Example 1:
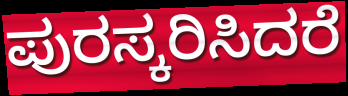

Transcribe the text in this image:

ಪುರಸ್ಕರಿಸಿದರೆ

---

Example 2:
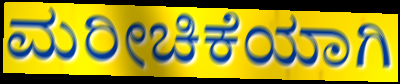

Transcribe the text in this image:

ಮರೀಚಿಕೆಯಾಗಿ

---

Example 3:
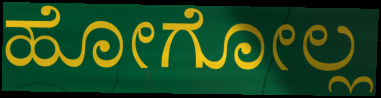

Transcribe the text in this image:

ಹೋಗೋಲ್ಲ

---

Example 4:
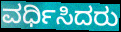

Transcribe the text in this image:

ವರ್ಧಿಸಿದರು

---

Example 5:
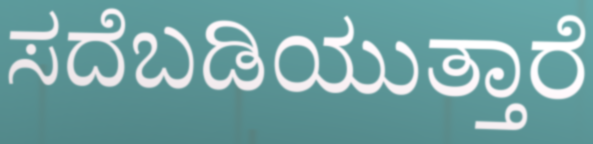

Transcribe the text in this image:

ಸದೆಬಡಿಯುತ್ತಾರೆ